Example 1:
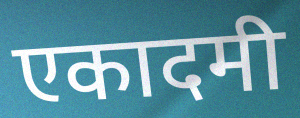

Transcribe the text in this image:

एकादमी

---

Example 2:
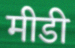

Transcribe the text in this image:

मीडी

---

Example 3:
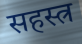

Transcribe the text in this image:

सहस्‍त्र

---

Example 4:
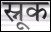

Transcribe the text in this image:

स्नूक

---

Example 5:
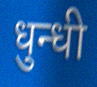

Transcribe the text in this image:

धुन्धी